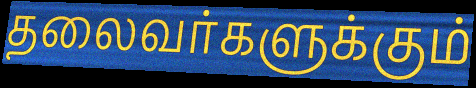
தலைவர்களுக்கும்